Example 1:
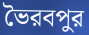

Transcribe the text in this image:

ভৈরবপুর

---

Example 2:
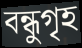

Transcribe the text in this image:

বন্ধুগৃহ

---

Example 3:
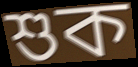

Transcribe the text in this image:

শুক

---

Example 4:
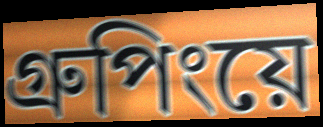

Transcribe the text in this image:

গ্রুপিংয়ে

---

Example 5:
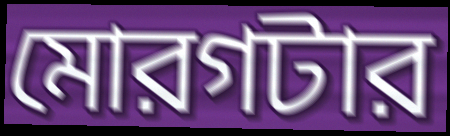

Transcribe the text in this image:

মোরগটার